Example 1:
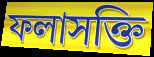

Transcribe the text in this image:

ফলাসক্তি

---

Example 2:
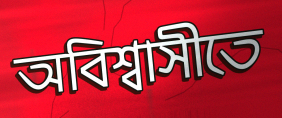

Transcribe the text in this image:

অবিশ্বাসীতে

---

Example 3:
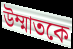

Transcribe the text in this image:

উম্মাতকে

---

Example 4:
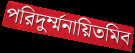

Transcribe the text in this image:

পরিদুর্ম্মনায়িতমিব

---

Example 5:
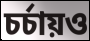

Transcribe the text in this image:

চর্চায়ও